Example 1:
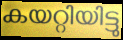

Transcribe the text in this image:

കയറ്റിയിട്ടു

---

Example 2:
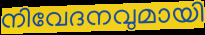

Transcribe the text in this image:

നിവേദനവുമായി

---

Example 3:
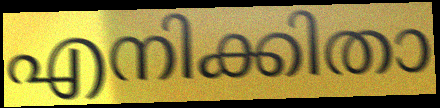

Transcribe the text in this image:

എനിക്കിതാ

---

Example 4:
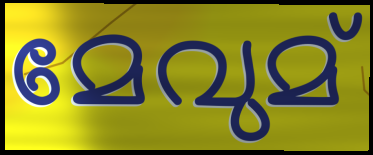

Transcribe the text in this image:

മേവുമ്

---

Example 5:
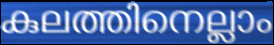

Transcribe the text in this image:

കുലത്തിനെല്ലാം